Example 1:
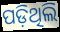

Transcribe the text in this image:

ପଡ଼ିଥିଲି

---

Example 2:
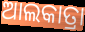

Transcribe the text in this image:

ଆଲକାତ୍ରା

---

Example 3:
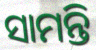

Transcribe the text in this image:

ସାମନ୍ତି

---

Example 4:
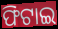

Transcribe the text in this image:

ଫିଟାଇ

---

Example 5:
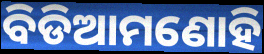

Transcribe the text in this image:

ବିଡିଆମଣୋହି